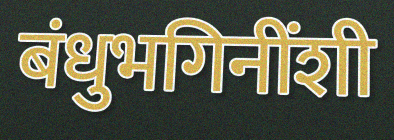
बंधुभगिनींशी